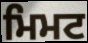
ਮਿਮਟ